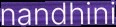
nandhini